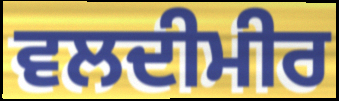
ਵਲਦੀਮੀਰ